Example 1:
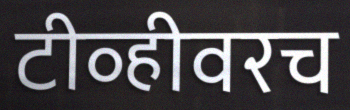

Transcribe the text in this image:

टीव्हीवरच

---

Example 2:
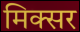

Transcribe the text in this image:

मिक्‍सर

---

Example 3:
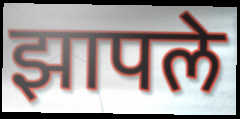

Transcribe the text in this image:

झापले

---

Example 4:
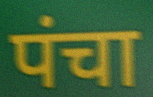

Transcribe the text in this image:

पंचा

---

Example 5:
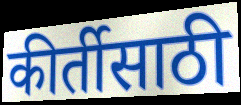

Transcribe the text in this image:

कीर्तीसाठी